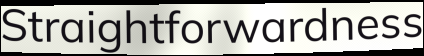
Straightforwardness